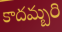
కాదమ్బరి